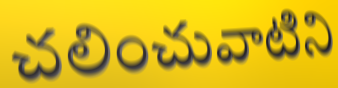
చలించువాటిని